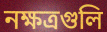
নক্ষত্রগুলি